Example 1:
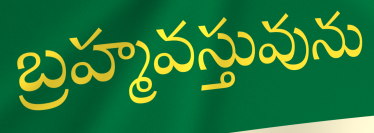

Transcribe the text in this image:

బ్రహ్మవస్తువును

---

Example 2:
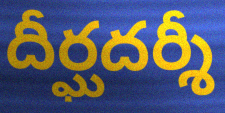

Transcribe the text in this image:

దీర్ఘదర్శీ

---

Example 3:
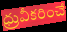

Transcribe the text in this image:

ధ్రువీకరించే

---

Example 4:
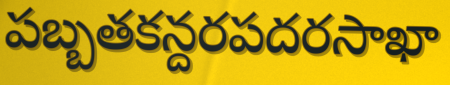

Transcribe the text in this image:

పబ్బతకన్దరపదరసాఖా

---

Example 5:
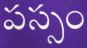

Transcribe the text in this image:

పస్సం